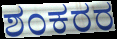
ಶಂಕರರ